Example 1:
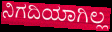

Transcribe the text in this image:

ನಿಗದಿಯಾಗಿಲ್ಲ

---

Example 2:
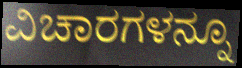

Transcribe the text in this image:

ವಿಚಾರಗಳನ್ನೂ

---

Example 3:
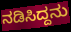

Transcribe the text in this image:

ನಡಿಸಿದ್ದನು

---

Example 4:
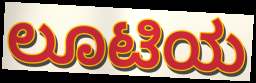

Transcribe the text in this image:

ಲೂಟಿಯ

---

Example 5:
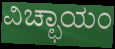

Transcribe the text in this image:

ವಿಚ್ಛಾಯಂ